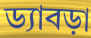
ড্যাবড়া